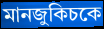
মানজুকিচকে